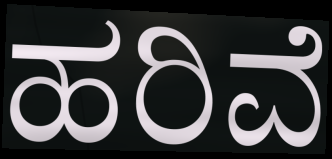
ಹರಿವೆ